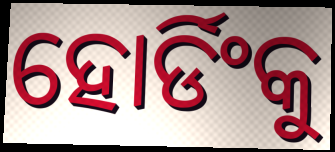
ହୋର୍ଡିଂକୁ